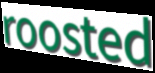
roosted